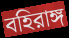
বহিরাঙ্গ